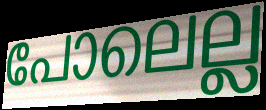
പോലെല്ല